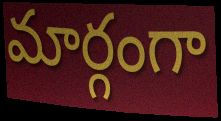
మార్గంగా